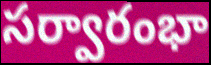
సర్వారంభా